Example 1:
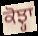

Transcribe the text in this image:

ਕੋਝ੍ਹਾ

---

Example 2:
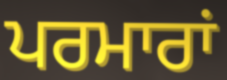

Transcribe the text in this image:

ਪਰਮਾਰਾਂ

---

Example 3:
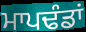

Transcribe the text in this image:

ਮਾਪਢੰਡਾਂ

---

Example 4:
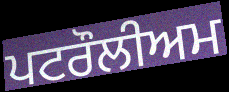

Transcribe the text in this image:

ਪਟਰੌਲੀਅਮ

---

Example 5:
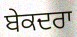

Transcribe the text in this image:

ਬੇਕਦਰਾ